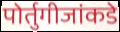
पोर्तुगीजांकडे